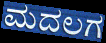
ಮದಲಗ